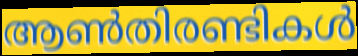
ആൺതിരണ്ടികൾ